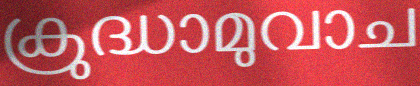
ക്രുദ്ധാമുവാച